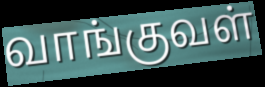
வாங்குவள்